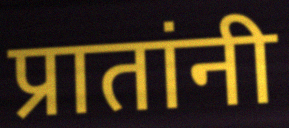
प्रातांनी